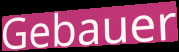
Gebauer